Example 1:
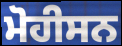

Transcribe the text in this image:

ਮੋਹੀਸਨ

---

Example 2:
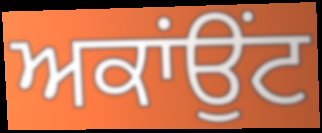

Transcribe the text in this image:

ਅਕਾਂਉਂਟ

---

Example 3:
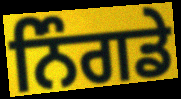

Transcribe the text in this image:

ਨਿੰਗਡੇ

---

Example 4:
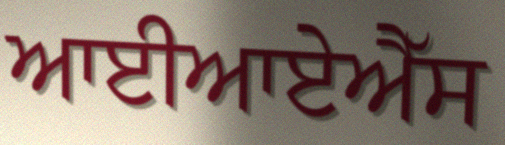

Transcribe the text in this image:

ਆਈਆਏਐੱਸ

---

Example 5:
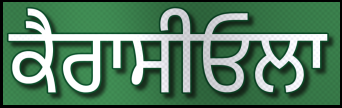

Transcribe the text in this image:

ਕੈਰਾਸੀਓਲਾ